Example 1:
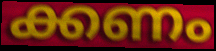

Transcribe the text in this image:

ക്കണം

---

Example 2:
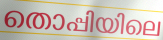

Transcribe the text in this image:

തൊപ്പിയിലെ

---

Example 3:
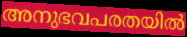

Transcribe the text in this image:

അനുഭവപരതയിൽ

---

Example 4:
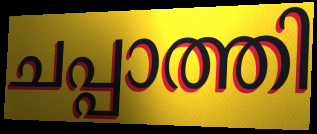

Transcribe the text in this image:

ചപ്പാത്തി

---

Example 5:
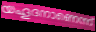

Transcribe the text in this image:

യഹൂദനാണെന്ന്